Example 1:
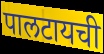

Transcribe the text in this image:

पालटायची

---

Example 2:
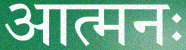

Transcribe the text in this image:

आत्मनः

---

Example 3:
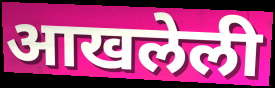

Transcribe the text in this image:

आखलेली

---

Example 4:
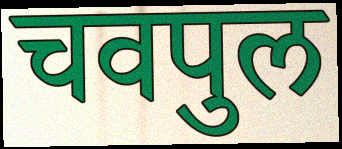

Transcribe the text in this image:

चवपुल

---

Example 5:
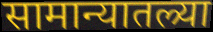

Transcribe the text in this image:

सामान्यातल्या